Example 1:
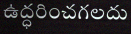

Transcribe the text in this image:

ఉద్ధరించగలదు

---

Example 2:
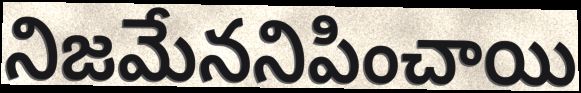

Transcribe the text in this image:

నిజమేననిపించాయి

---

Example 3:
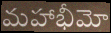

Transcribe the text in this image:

మహాభీమో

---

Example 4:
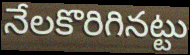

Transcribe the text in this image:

నేలకొరిగినట్టు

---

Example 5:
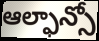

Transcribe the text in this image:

ఆల్ఫాన్సో